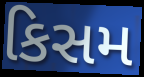
કિસમ